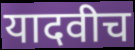
यादवीच